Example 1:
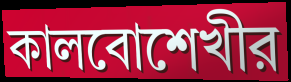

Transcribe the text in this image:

কালবোশেখীর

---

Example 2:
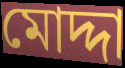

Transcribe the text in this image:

মোদ্দা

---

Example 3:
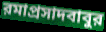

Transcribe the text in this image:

রমাপ্রসাদবাবুর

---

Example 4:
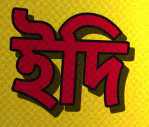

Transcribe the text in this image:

ইদি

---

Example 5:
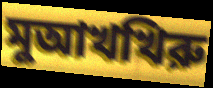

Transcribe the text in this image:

মুআখখিরু